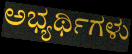
ಅಭ್ಯರ್ಥಿಗಳು